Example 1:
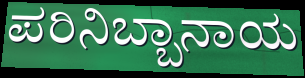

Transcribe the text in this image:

ಪರಿನಿಬ್ಬಾನಾಯ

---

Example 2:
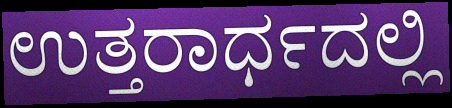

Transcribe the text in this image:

ಉತ್ತರಾರ್ಧದಲ್ಲಿ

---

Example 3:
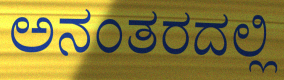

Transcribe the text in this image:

ಅನಂತರದಲ್ಲಿ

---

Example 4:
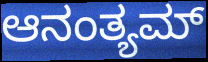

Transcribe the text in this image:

ಆನಂತ್ಯಮ್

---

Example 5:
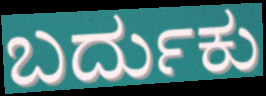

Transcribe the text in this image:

ಬರ್ದುಕು